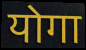
योगा